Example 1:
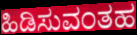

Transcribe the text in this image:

ಹಿಡಿಸುವಂತಹ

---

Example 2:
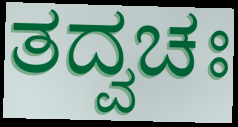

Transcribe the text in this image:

ತದ್ವಚಃ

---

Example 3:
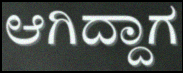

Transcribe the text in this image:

ಆಗಿದ್ದಾಗ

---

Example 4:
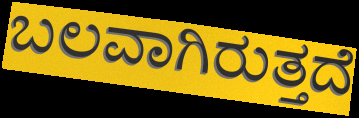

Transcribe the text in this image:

ಬಲವಾಗಿರುತ್ತದೆ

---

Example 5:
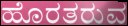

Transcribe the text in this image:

ಹೊರತರುವ